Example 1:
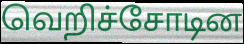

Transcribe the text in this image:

வெறிச்சோடின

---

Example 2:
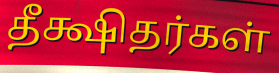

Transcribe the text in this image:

தீக்ஷிதர்கள்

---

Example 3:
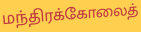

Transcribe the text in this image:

மந்திரக்கோலைத்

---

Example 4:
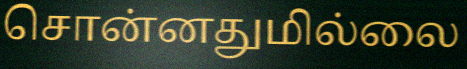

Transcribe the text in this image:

சொன்னதுமில்லை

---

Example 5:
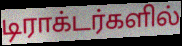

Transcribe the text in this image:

டிராக்டர்களில்